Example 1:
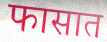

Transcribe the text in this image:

फासात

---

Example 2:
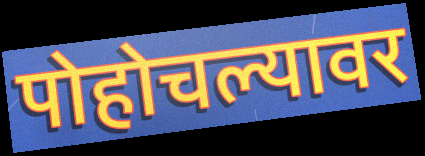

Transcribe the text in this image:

पोहोचल्यावर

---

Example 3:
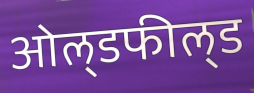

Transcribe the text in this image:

ओल्डफील्ड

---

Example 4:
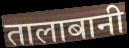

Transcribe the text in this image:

तालाबानी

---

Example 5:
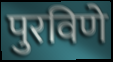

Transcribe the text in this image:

पुरविणे